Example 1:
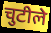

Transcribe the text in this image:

चुटीले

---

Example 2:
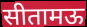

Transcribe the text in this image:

सीतामऊ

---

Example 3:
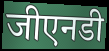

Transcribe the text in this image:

जीएनडी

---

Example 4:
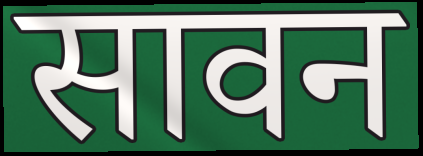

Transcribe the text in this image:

सावन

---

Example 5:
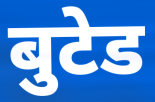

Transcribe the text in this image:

बुटेड